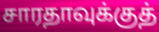
சாரதாவுக்குத்